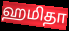
ஹமிதா